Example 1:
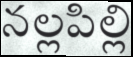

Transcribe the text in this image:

నల్లపిల్లి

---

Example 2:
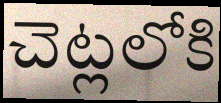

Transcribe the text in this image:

చెట్లలోకి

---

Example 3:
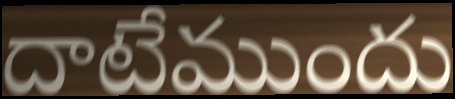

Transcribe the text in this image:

దాటేముందు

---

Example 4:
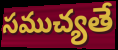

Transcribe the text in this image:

సముచ్యతే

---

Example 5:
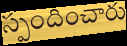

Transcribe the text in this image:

స్పందించారు